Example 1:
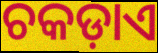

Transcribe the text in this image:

ଚକଡ଼ାଏ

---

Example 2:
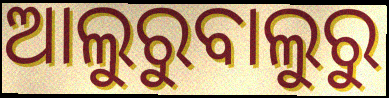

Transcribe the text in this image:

ଆଲୁରୁବାଲୁରୁ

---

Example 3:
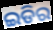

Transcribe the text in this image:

ଇଡିର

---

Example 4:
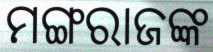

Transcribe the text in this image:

ମଙ୍ଗରାଜଙ୍କ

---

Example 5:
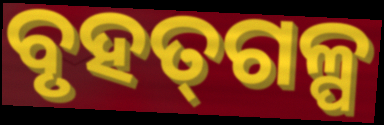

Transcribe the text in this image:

ବୃହତ୍‌ଗଳ୍ପ